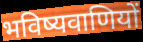
भविष्यवाणियों